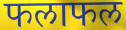
फलाफल